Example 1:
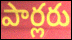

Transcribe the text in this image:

పార్లరు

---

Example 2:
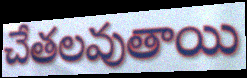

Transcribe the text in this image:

చేతలవుతాయి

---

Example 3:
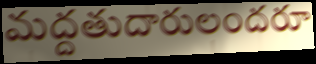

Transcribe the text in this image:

మద్దతుదారులందరూ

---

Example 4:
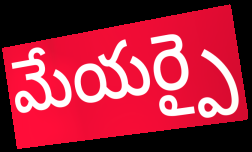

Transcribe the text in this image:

మేయర్పై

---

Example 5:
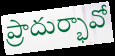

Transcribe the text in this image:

ప్రాదుర్భావో